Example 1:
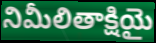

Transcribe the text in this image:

నిమీలితాక్షియై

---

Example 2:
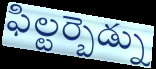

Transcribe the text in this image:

ఫిల్టర్బెడ్ను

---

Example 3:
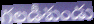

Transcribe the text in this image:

గలడీశుండు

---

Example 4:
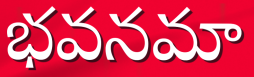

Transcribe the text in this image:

భవనమా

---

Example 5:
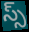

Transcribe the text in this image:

స్స్